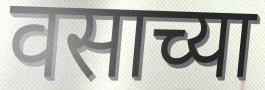
वसाच्या